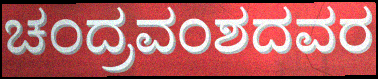
ಚಂದ್ರವಂಶದವರ